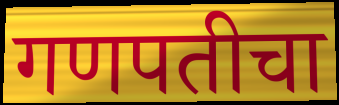
गणपतीचा